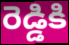
రెడ్డికి